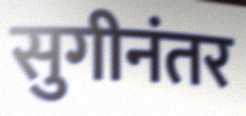
सुगीनंतर